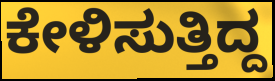
ಕೇಳಿಸುತ್ತಿದ್ದ